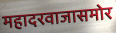
महादरवाजासमोर